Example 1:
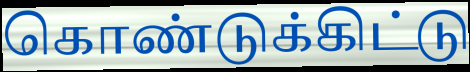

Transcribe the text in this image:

கொண்டுக்கிட்டு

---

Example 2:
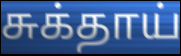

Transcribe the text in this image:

சுக்தாய்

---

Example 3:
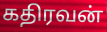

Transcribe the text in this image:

கதிரவன்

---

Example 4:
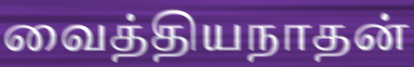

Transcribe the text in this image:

வைத்தியநாதன்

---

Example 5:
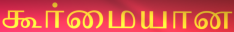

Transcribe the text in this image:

கூர்மையான